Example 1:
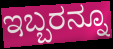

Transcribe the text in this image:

ಇಬ್ಬರನ್ನೂ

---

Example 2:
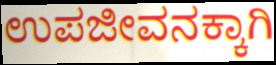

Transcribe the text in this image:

ಉಪಜೀವನಕ್ಕಾಗಿ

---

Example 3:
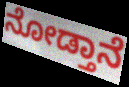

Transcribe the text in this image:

ನೋಡ್ತಾನೆ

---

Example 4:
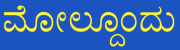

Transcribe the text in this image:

ಮೋಲ್ದೂಂದು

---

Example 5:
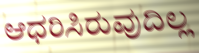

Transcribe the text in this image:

ಆಧರಿಸಿರುವುದಿಲ್ಲ